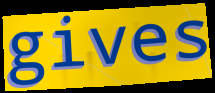
gives